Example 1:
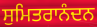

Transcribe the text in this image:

ਸੁਮਿਤਰਾਨੰਦਨ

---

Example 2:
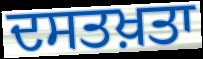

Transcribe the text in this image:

ਦਸਤਖ਼ਤਾ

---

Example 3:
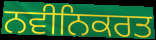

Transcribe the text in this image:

ਨਵੀਨਿਕਰਤ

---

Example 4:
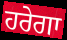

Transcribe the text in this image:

ਹਰੇਗਾ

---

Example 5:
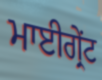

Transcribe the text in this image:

ਮਾਈਗ੍ਰੇਂਟ